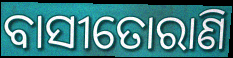
ବାସୀତୋରାଣି